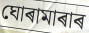
ঘোৰামাৰাৰ